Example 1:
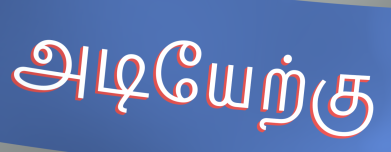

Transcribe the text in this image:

அடியேற்கு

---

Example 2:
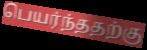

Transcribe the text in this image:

பெயர்ந்ததற்கு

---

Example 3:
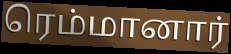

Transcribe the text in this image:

ரெம்மானார்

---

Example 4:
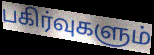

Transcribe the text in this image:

பகிர்வுகளும்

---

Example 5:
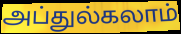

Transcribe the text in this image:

அப்துல்கலாம்